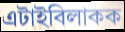
এটাইবিলাকক